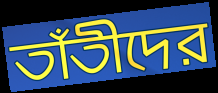
তাঁতীদের